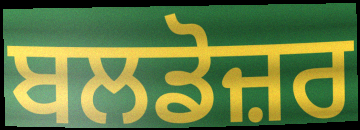
ਬਲਡੋਜ਼ਰ